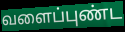
வளைப்புண்ட